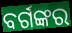
ବର୍ଗଙ୍କର